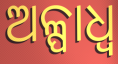
ଅଳ୍ପାଧ୍ଵ